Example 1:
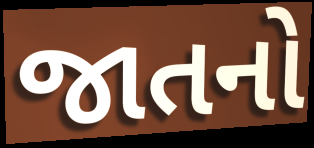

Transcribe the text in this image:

જાતનો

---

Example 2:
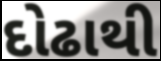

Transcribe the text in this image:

દોઢાથી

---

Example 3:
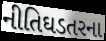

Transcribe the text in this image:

નીતિઘડતરના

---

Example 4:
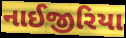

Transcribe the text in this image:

નાઈજીરિયા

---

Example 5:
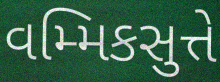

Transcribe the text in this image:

વમ્મિકસુત્તે